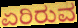
ಏರಿರುವ